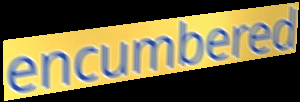
encumbered